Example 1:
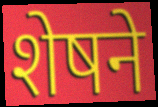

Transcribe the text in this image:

शेषने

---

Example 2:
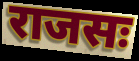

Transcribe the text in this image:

राजसः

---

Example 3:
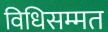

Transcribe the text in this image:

विधिसम्मत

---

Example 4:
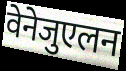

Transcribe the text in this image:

वेनेजुएलन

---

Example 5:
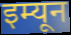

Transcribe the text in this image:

इम्‍यून